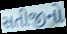
સતીજીનો